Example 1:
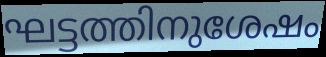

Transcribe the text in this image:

ഘട്ടത്തിനുശേഷം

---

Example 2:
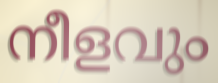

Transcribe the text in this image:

നീളവും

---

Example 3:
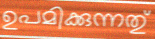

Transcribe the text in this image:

ഉപമിക്കുന്നതു്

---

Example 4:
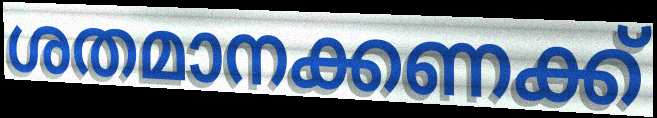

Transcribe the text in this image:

ശതമാനക്കണക്ക്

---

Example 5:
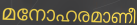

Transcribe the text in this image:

മനോഹരമാണീ